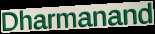
Dharmanand